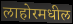
लाहोरमधील